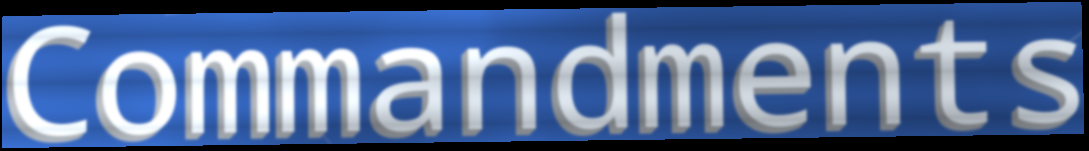
Commandments